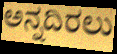
ಅನ್ನದಿರಲು